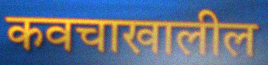
कवचाखालील